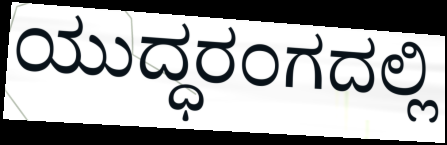
ಯುದ್ಧರಂಗದಲ್ಲಿ